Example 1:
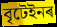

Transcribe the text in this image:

বৃটেইনৰ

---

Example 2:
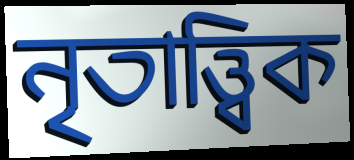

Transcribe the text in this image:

নৃতাত্ত্বিক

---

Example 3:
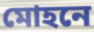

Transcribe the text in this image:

মোহনে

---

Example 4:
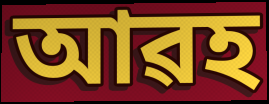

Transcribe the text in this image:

আৱহ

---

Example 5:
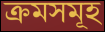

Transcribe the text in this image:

ক্ৰমসমূহ